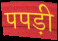
पपड़ी